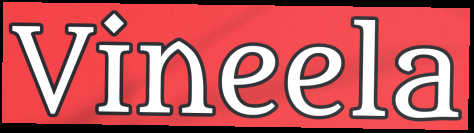
Vineela